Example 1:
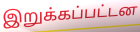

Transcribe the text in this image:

இறுக்கப்பட்டன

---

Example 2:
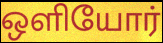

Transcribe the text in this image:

ஒளியோர்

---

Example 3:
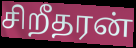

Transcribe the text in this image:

சிறீதரன்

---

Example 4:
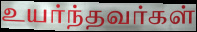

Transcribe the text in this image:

உயர்ந்தவர்கள்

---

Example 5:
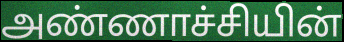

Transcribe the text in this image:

அண்ணாச்சியின்